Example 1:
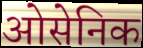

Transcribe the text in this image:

ओसेनिक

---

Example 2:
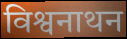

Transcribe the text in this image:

विश्वनाथन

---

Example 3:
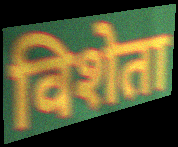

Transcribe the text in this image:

विशेता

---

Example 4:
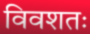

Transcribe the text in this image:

विवशतः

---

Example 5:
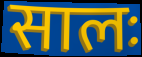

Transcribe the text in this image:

सालः